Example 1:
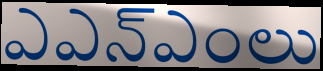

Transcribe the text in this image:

ఎఎన్ఎంలు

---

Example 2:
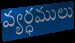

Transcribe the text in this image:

వ్యర్ధములు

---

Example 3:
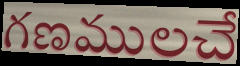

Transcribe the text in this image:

గణములచే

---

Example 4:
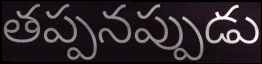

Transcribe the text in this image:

తప్పనప్పుడు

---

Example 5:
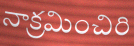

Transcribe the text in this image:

నాక్రమించిరి